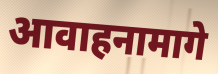
आवाहनामागे